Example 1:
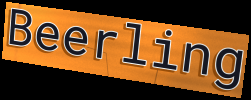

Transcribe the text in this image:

Beerling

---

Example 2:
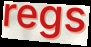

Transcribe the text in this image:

regs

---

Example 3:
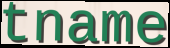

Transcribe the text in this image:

tname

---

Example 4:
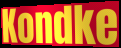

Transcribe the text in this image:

Kondke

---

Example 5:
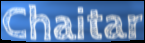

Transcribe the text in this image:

Chaitar